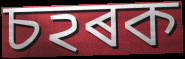
চহৰক